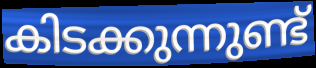
കിടക്കുന്നുണ്ട്